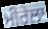
ਮੀਰੇਲਾ